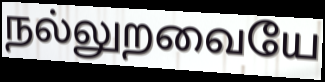
நல்லுறவையே